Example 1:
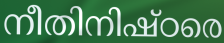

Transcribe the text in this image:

നീതിനിഷ്ഠരെ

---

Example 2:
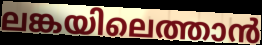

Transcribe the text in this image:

ലങ്കയിലെത്താൻ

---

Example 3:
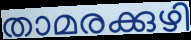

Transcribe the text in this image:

താമരക്കുഴി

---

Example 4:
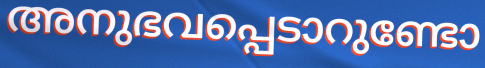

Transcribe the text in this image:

അനുഭവപ്പെടാറുണ്ടോ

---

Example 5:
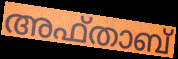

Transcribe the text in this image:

അഫ്താബ്